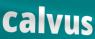
calvus